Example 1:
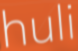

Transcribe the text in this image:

huli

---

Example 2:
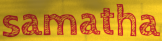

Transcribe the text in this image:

samatha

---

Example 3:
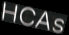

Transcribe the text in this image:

HCAs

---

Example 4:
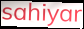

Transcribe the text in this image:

sahiyar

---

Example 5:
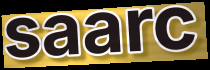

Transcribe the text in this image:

saarc